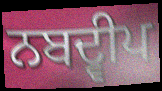
ਨਬਦ੍ਵੀਪ